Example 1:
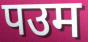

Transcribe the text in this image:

पउम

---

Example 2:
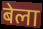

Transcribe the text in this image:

बेला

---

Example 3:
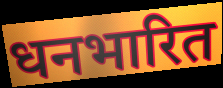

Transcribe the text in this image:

धनभारित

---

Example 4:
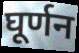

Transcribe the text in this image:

घूर्णन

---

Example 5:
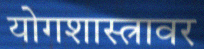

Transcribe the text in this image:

योगशास्त्रावर